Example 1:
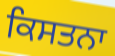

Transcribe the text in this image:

ਕਿਸਤਨਾ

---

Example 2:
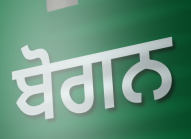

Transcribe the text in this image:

ਬੋਗਨ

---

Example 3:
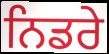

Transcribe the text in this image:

ਨਿਡਰੇ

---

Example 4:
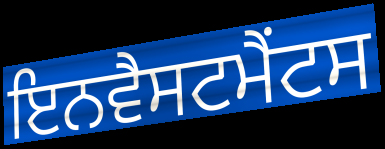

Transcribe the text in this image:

ਇਨਵੈਸਟਮੈਂਟਸ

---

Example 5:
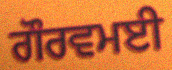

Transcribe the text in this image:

ਗੌਰਵਮਈ